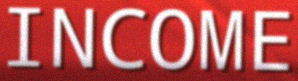
INCOME